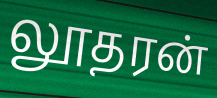
லூதரன்